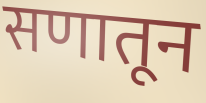
सणातून